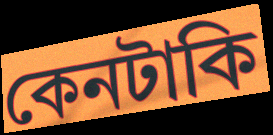
কেনটাকি